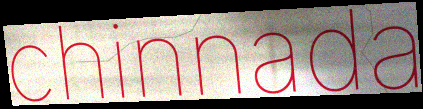
chinnada